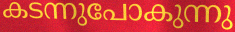
കടന്നുപോകുന്നു